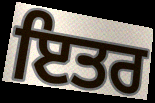
ਇਤਰ